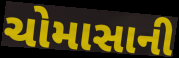
ચોમાસાની